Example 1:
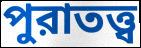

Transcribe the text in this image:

পুরাতত্ত্ব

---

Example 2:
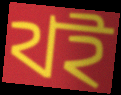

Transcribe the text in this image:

থই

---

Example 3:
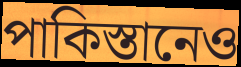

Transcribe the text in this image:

পাকিস্তানেও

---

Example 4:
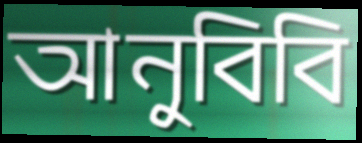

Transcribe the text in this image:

আনুবিবি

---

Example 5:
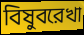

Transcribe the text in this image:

বিষুবরেখা